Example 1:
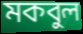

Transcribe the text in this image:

মকবুল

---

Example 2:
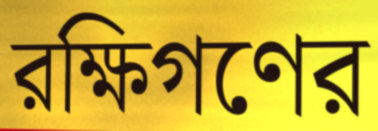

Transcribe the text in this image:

রক্ষিগণের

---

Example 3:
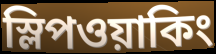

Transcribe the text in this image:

স্লিপওয়াকিং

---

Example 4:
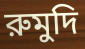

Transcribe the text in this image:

রুমুদি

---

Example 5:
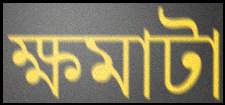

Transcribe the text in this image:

ক্ষমাটা